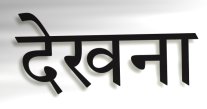
देखना